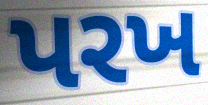
પરખ